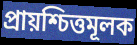
প্রায়শ্চিত্তমূলক